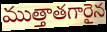
ముత్తాతగారైన